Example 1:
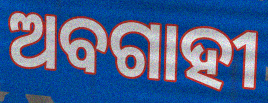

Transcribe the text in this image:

ଅବଗାହୀ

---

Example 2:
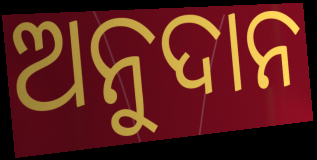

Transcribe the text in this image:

ଅନୁଦାନ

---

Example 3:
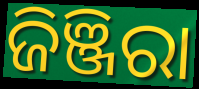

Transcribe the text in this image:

ଜିଞ୍ଜିରା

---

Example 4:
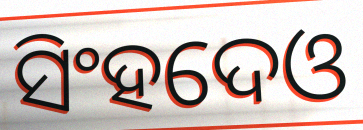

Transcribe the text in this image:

ସିଂହଦେଓ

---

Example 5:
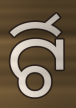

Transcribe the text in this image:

ର୍ଟି